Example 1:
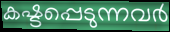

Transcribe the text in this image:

കഷ്ടപ്പെടുന്നവർ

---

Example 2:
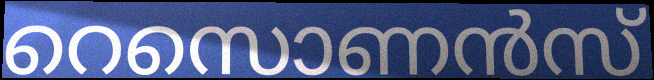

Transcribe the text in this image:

റെസൊണൻസ്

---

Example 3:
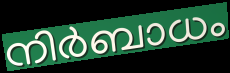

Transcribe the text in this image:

നിർബാധം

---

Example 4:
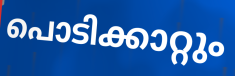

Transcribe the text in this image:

പൊടിക്കാറ്റും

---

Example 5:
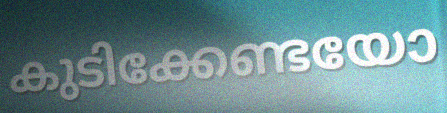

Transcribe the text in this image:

കുടിക്കേണ്ടയോ